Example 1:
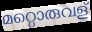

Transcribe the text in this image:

മറ്റൊരുവള്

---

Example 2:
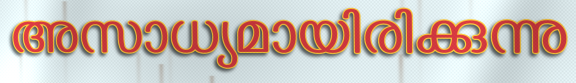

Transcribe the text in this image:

അസാധ്യമായിരിക്കുന്നു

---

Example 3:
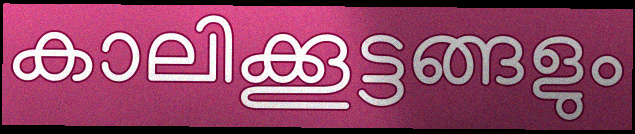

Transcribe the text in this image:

കാലിക്കൂട്ടങ്ങളും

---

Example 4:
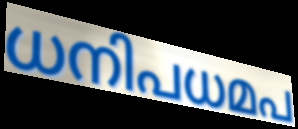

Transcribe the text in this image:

ധനിപധമപ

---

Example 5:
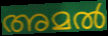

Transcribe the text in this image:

അമൽ